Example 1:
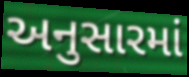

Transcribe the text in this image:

અનુસારમાં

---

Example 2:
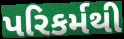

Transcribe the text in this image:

પરિકર્મથી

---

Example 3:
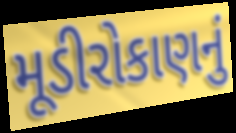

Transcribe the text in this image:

મૂડીરોકાણનું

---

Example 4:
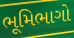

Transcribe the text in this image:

ભૂમિભાગો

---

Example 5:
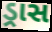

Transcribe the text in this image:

ડ્રાસ